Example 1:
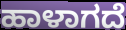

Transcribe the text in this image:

ಹಾಳಾಗದೆ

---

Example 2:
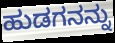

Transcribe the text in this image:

ಹುಡಗನನ್ನು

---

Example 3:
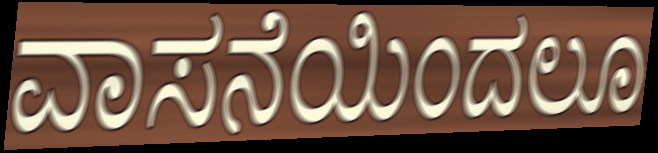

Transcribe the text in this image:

ವಾಸನೆಯಿಂದಲೂ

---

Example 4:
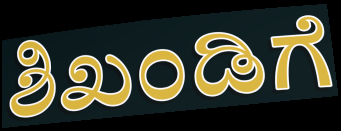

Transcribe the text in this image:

ಶಿಖಂಡಿಗೆ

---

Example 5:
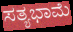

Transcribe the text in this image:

ಸತ್ಯಭಾಮೆ